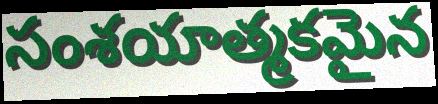
సంశయాత్మకమైన